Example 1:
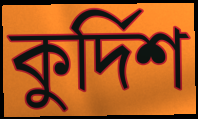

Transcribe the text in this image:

কুর্দিশ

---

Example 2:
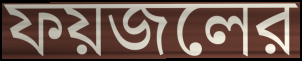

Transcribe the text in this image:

ফয়জলের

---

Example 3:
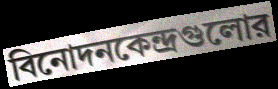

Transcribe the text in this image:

বিনোদনকেন্দ্রগুলোর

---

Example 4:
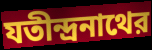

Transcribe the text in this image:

যতীন্দ্রনাথের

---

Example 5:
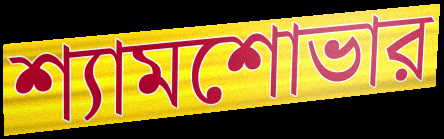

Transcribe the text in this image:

শ্যামশোভার